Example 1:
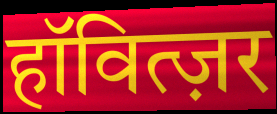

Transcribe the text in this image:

हॉवित्ज़र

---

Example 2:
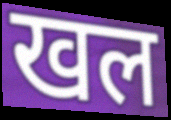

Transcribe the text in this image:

खल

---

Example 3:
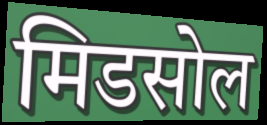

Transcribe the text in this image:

मिडसोल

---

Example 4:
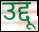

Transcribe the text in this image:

उद्दू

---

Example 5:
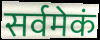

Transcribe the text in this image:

सर्वमेकं